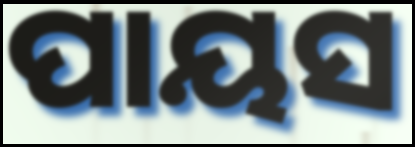
ପାୟସ